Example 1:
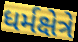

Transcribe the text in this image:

ધર્મક્ષેત્રે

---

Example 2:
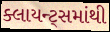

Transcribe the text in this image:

ક્લાયન્ટ્સમાંથી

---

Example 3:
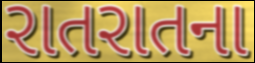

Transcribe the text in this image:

રાતરાતના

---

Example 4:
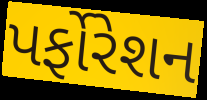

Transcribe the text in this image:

પર્ફોરેશન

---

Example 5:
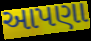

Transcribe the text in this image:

આપણા